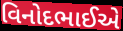
વિનોદભાઈએ